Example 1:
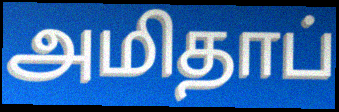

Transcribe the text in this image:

அமிதாப்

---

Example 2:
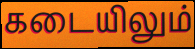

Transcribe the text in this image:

கடையிலும்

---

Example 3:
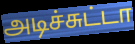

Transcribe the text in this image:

அடிச்சுட்டா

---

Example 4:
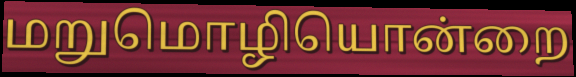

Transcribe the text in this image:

மறுமொழியொன்றை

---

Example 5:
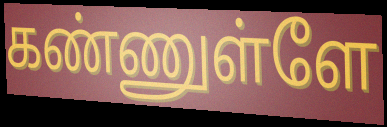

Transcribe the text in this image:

கண்ணுள்ளே